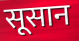
सूसान